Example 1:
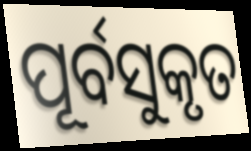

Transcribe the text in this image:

ପୂର୍ବସୁକୃତ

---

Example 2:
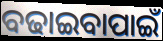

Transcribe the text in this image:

ବଢାଇବାପାଇଁ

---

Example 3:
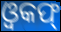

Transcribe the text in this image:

ଓ୍ୱକଫ୍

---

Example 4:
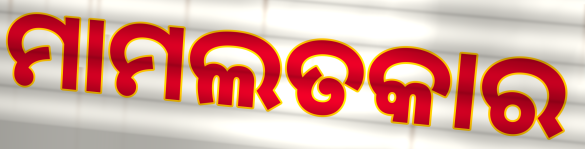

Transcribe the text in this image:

ମାମଲତକାର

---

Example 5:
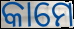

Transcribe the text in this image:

କାମେ